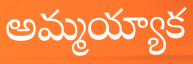
అమ్మయ్యాక